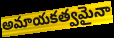
అమాయకత్వమైనా